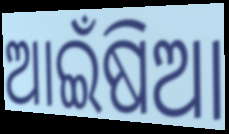
ଆଇଁଷିଆ